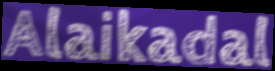
Alaikadal